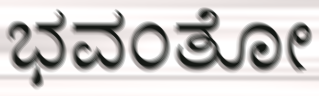
ಭವಂತೋ